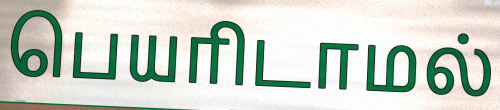
பெயரிடாமல்